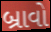
બ્રાવો